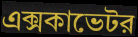
এক্সকাভেটর